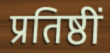
प्रतिष्ठीं